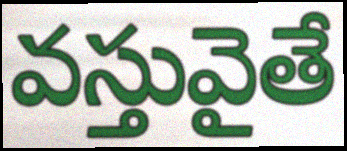
వస్తువైతే